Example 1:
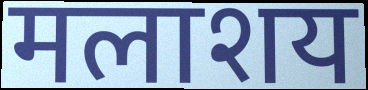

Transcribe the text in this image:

मलाशय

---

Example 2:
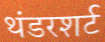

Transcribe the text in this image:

थंडरशर्ट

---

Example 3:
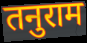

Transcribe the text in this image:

तनुराम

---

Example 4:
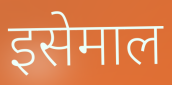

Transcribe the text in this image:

इसेमाल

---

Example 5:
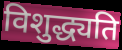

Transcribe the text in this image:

विशुद्ध्यति